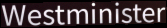
Westminister